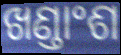
ଖଣ୍ଡାଂଶ